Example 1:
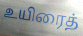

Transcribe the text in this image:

உயிரைத்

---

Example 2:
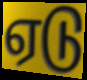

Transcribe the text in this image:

ஏடு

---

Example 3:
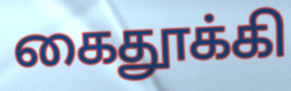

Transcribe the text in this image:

கைதூக்கி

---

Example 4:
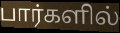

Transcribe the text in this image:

பார்களில்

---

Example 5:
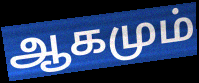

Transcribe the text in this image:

ஆகமும்